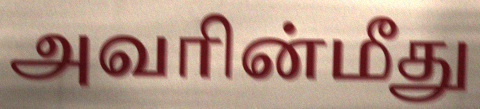
அவரின்மீது